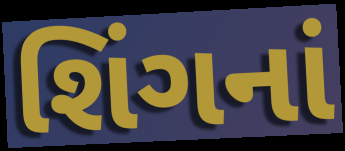
શિંગનાં